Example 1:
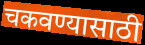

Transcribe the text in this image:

चकवण्यासाठी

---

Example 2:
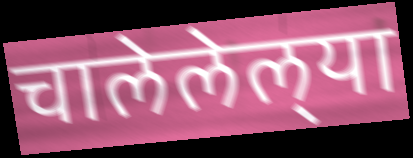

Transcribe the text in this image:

चालेलेल्या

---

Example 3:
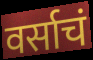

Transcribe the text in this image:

वर्साचं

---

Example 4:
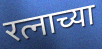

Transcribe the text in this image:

रत्नाच्या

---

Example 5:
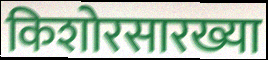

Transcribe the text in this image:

किशोरसारख्या